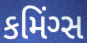
કમિંગ્સ